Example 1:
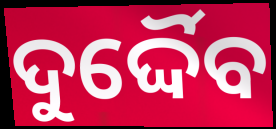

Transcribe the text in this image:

ଦୁର୍ଦ୍ଦୈବ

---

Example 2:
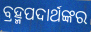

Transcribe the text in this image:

ବ୍ରହ୍ମପଦାର୍ଥଙ୍କର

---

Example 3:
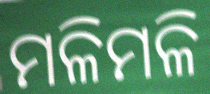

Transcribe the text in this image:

ମଳିମଳି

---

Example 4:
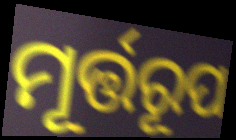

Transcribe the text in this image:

ମୂର୍ତ୍ତରୂପ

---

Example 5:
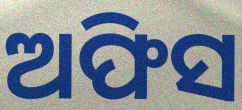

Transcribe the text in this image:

ଅଫିସ